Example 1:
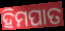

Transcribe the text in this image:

ହିମପାତ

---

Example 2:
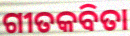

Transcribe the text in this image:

ଗୀତକବିତା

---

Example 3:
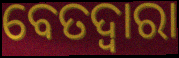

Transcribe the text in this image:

ବେତଦ୍ୱାରା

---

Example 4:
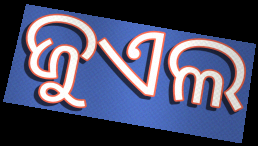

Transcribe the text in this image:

ଜୁଏଲ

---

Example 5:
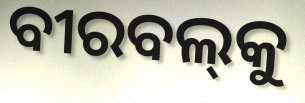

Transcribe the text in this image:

ବୀରବଲ୍‌କୁ